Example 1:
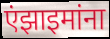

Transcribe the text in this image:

एंझाइमांना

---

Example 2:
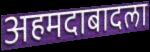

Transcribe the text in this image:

अहमदाबादला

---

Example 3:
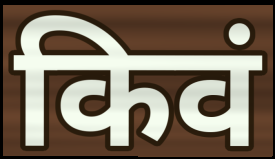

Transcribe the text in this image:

किवं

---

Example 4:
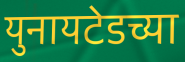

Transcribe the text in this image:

युनायटेडच्या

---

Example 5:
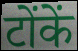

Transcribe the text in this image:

टोंकें